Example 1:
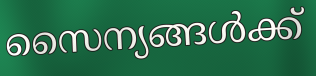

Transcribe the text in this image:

സൈന്യങ്ങൾക്ക്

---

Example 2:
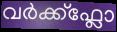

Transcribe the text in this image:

വർക്ക്ഫ്ലോ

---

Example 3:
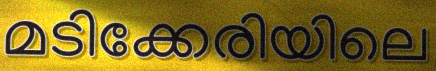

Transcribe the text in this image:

മടിക്കേരിയിലെ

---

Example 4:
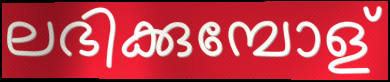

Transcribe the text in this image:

ലഭിക്കുമ്പോള്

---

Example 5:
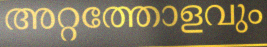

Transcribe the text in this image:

അറ്റത്തോളവും